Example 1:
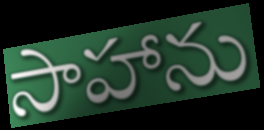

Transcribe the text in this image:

సాహాను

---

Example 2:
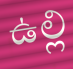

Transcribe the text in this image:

ఉల్లి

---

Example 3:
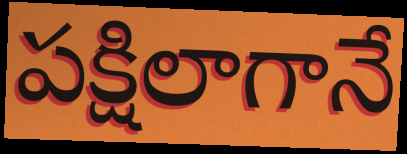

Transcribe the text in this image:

పక్షిలాగానే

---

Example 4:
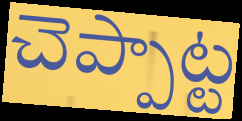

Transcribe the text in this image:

చెప్పాట్ట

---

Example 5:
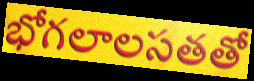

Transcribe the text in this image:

భోగలాలసతతో